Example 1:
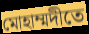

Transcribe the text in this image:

মোহাম্মদীতে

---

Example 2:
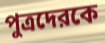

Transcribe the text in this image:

পুত্রদেরকে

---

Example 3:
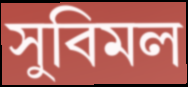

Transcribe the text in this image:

সুবিমল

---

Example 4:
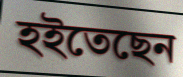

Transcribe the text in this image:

হইতেছেন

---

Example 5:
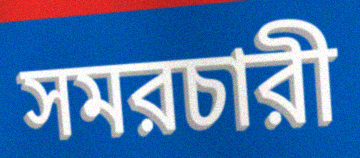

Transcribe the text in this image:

সমরচারী